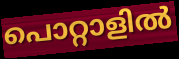
പൊറ്റാളിൽ